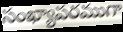
సంఖ్యాపరముగా